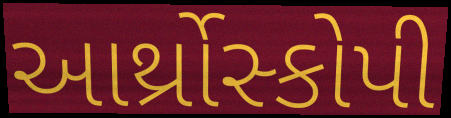
આર્થ્રોસ્કોપી